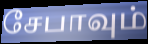
சேபாவும்